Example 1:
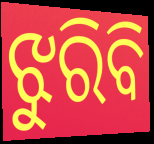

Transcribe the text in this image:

ଝୁରିବି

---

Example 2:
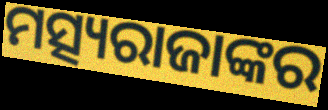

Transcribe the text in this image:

ମତ୍ସ୍ୟରାଜାଙ୍କର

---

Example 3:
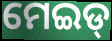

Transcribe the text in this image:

ମେଇଡ୍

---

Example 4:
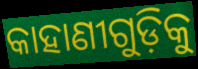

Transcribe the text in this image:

କାହାଣୀଗୁଡ଼ିକୁ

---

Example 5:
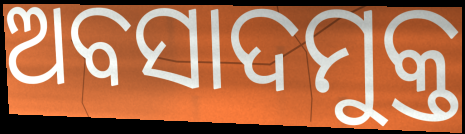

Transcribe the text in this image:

ଅବସାଦମୁକ୍ତ